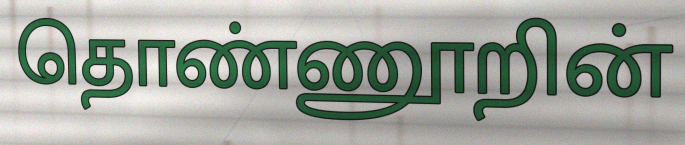
தொண்ணூறின்